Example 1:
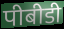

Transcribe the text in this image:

पीबीडी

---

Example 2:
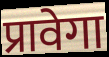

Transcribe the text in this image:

प्रावेगा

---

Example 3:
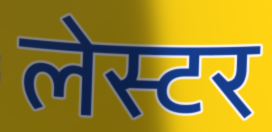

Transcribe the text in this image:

लेस्टर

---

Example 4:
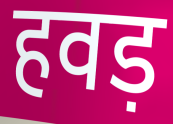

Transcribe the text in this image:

हवड़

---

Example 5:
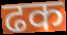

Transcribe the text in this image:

ढक